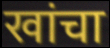
खांचा